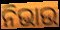
ନିଭାଉ